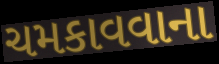
ચમકાવવાના